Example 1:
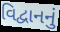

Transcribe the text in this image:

વિદ્વાનનું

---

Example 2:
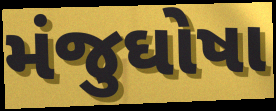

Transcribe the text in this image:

મંજુઘોષા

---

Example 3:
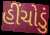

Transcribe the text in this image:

હીંચોડું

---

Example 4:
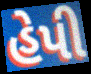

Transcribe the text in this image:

હેપી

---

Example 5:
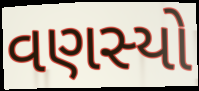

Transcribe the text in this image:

વણસ્યો